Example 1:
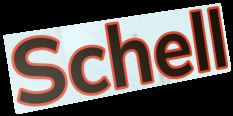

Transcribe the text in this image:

Schell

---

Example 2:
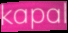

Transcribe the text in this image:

kapal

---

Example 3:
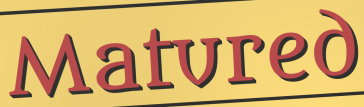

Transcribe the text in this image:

Matured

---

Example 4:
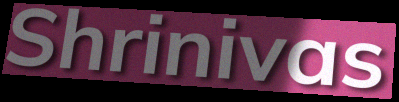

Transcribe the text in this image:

Shrinivas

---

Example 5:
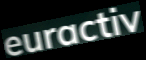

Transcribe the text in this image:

euractiv